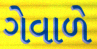
ગેવાળે